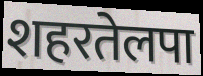
शहरतेलपा